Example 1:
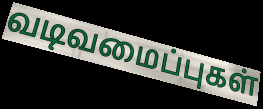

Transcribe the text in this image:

வடிவமைப்புகள்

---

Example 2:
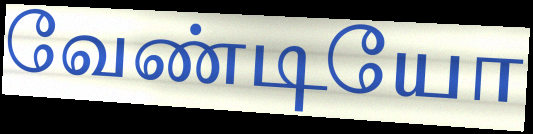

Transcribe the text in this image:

வேண்டியோ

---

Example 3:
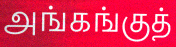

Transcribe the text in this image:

அங்கங்குத்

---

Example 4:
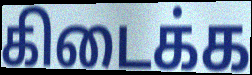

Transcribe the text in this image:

கிடைக்க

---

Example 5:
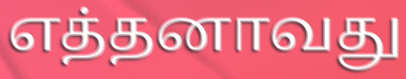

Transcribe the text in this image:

எத்தனாவது